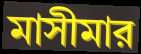
মাসীমার